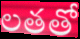
లతతో